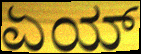
ಏಯ್